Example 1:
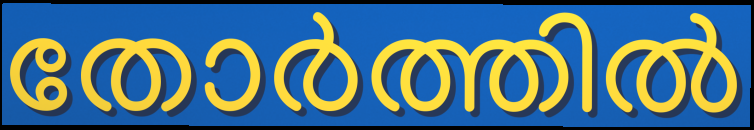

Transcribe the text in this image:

തോർത്തിൽ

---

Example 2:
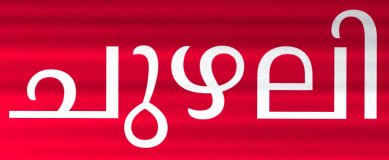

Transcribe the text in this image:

ചുഴലി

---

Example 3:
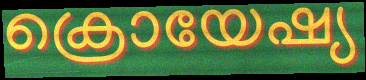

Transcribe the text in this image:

ക്രൊയേഷ്യ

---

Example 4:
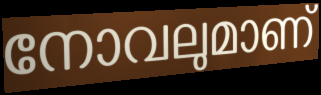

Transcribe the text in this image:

നോവലുമാണ്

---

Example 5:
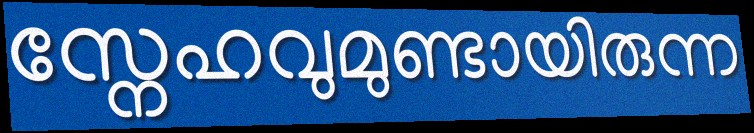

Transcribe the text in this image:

സ്നേഹവുമുണ്ടായിരുന്ന